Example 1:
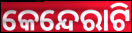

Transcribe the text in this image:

କେନ୍ଦେରାଟି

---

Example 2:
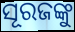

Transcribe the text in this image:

ସୂରଜଙ୍କୁ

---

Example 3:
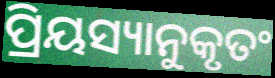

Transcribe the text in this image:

ପ୍ରିୟସ୍ୟାନୁକୃତଂ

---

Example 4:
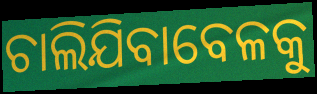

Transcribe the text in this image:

ଚାଲିଯିବାବେଳକୁ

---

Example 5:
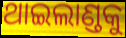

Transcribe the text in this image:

ଥାଇଲାଣ୍ଡକୁ